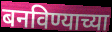
बनविण्याच्या